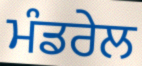
ਮੰਡਰੇਲ